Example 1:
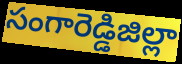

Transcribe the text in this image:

సంగారెడ్డిజిల్లా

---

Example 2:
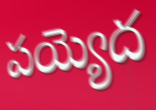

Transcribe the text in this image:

పయ్యెద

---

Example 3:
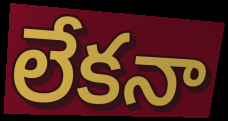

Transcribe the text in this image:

లేకనా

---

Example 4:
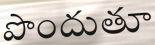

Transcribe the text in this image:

పొందుతూ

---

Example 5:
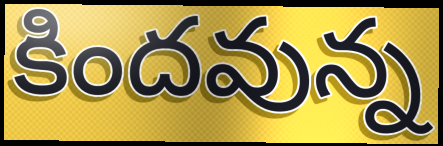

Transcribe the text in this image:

కిందవున్న